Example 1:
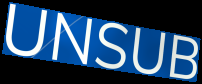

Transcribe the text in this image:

UNSUB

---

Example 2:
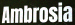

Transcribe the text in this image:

Ambrosia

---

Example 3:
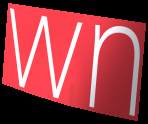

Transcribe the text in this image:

wn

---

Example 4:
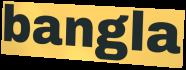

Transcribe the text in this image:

bangla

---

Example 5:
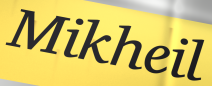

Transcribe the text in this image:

Mikheil